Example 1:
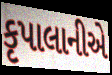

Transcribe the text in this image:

કૃપાલાનીએ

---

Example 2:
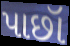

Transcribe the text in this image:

પાછૉ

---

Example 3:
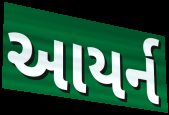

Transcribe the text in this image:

આયર્ન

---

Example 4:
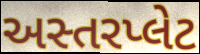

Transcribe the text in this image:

અસ્તરપ્લેટ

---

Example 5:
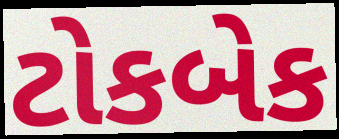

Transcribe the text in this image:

ટોકબેક